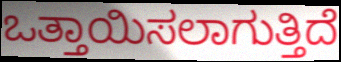
ಒತ್ತಾಯಿಸಲಾಗುತ್ತಿದೆ